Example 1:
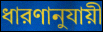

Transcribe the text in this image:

ধারণানুযায়ী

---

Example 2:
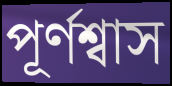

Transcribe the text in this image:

পূর্ণশ্বাস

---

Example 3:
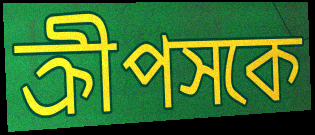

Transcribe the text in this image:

ক্রীপসকে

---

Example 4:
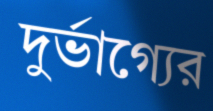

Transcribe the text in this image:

দুর্ভাগ্যের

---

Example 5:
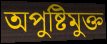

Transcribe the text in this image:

অপুষ্টিমুক্ত